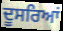
ਦੂਸਰਿਆਂ